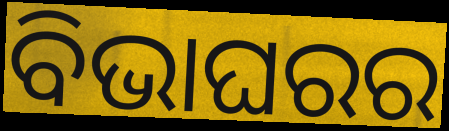
ବିଭାଘରର